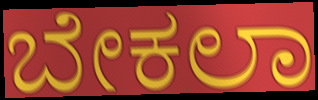
ಬೇಕಲಾ